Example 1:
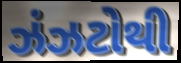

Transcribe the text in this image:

ઝંઝટોથી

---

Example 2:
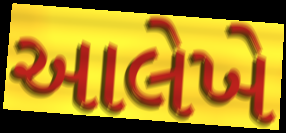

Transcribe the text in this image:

આલેખે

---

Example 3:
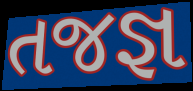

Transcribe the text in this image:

તજજ્ઞ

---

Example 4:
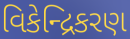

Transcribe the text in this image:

વિકેન્દ્રિકરણ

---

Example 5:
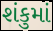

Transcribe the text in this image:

શંકુમાં